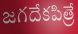
జగదేకపిత్రే